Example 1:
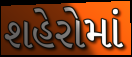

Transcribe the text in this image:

શહેરોમાં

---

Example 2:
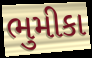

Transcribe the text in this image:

ભુમીકા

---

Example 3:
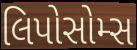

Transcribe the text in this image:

લિપોસોમ્સ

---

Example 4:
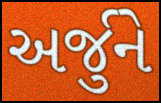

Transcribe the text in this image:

અર્જુને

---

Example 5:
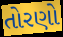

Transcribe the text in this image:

તોરણો